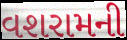
વશરામની